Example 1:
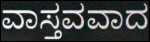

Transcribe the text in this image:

ವಾಸ್ತವವಾದ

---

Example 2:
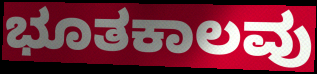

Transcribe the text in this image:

ಭೂತಕಾಲವು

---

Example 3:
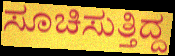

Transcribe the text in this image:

ಸೂಚಿಸುತ್ತಿದ್ದ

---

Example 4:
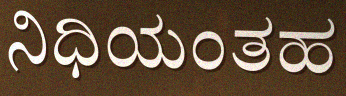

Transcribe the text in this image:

ನಿಧಿಯಂತಹ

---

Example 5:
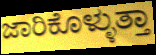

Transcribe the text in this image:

ಜಾರಿಕೊಳ್ಳುತ್ತಾ